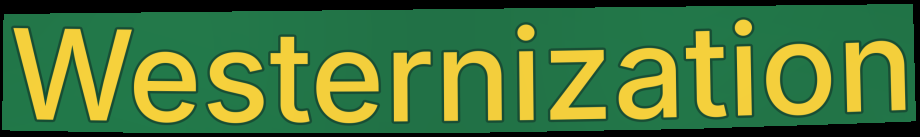
Westernization